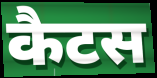
कैटस